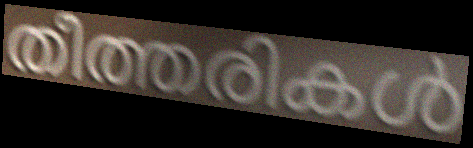
തീത്തരികൾ